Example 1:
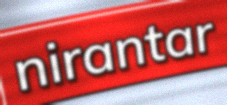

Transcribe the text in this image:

nirantar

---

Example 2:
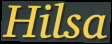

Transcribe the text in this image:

Hilsa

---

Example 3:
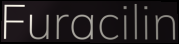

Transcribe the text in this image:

Furacilin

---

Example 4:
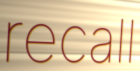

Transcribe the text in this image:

recall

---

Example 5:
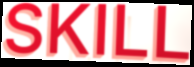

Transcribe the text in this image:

SKILL